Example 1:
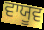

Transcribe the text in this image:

ਵਾਯੂਵ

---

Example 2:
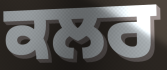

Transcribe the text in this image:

ਕਲਰ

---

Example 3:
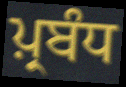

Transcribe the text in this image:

ਪ਼੍ਰਬੰਧ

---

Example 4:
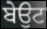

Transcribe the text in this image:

ਬੇਉਟ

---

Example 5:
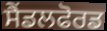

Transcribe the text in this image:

ਸੈਂਡਲਫੋਰਡ